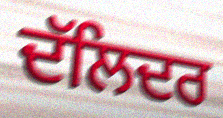
ਦੱਲਿਦਰ